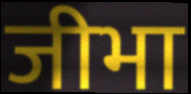
जीभा